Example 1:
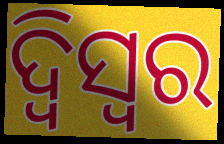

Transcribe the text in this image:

ଦ୍ଵିସ୍ଵର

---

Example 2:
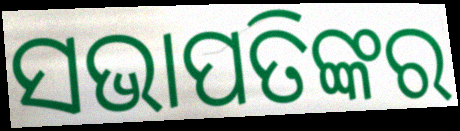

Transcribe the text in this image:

ସଭାପତିଙ୍କର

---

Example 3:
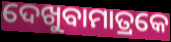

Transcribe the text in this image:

ଦେଖୁବାମାତ୍ରକେ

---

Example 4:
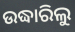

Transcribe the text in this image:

ଉଦ୍ଧାରିଲୁ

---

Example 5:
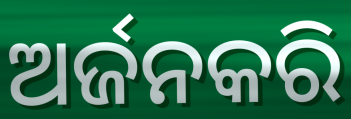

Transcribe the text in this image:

ଅର୍ଜନକରି